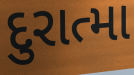
દુરાત્મા